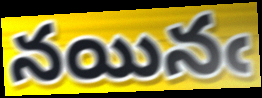
నయినఁ